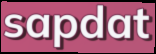
sapdat